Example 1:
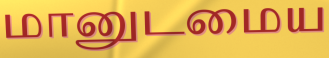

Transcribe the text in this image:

மானுடமைய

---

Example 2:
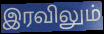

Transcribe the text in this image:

இரவிலும்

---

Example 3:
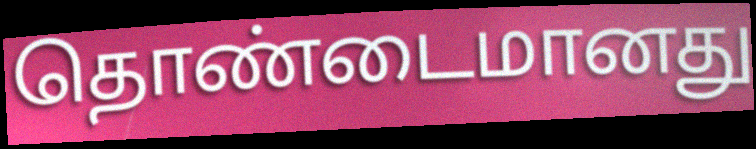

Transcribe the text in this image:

தொண்டைமானது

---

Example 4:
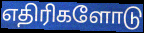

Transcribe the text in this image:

எதிரிகளோடு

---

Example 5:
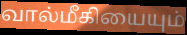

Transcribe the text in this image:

வால்மீகியையும்